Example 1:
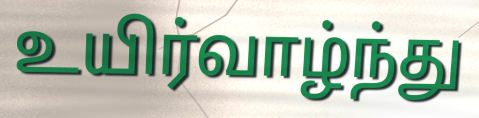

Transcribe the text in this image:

உயிர்வாழ்ந்து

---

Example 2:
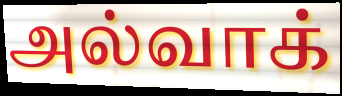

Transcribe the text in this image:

அல்வாக்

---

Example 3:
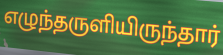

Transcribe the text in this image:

எழுந்தருளியிருந்தார்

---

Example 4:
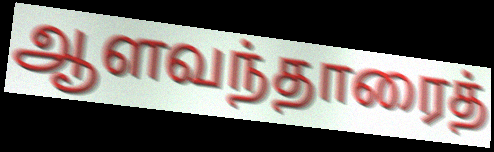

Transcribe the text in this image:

ஆளவந்தாரைத்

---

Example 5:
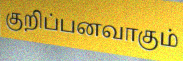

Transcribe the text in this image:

குறிப்பனவாகும்